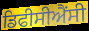
ਡਿਫੀਸੀਐਂਸੀ